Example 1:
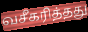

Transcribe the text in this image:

வசீகரித்தது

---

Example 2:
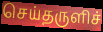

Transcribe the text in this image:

செய்தருளிச்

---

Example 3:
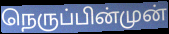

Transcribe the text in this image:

நெருப்பின்முன்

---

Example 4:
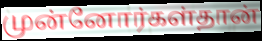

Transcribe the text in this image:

முன்னோர்கள்தான்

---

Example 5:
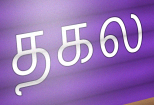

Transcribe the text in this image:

தகல